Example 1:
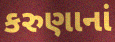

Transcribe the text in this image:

કરુણાનાં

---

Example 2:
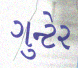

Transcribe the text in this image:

ગુન્ટેર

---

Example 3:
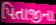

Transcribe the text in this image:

પિતાજીના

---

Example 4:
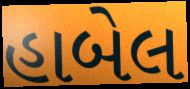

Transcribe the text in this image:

હાબેલ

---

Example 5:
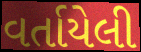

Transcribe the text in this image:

વર્તાયેલી